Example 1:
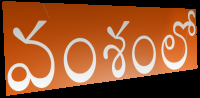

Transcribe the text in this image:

వంశంలో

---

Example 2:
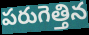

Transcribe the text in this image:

పరుగెత్తిన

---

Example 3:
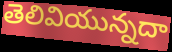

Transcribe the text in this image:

తెలివియున్నదా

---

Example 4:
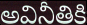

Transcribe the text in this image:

అవినీతికి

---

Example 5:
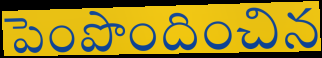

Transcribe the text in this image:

పెంపొందించిన